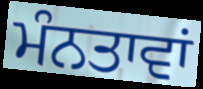
ਮੰਨਤਾਵਾਂ